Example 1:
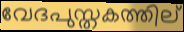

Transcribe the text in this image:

വേദപുസ്തകത്തില്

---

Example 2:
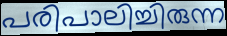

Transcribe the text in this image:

പരിപാലിച്ചിരുന്ന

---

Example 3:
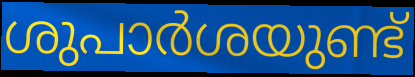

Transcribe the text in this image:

ശുപാർശയുണ്ട്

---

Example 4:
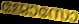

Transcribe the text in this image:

ജോസോ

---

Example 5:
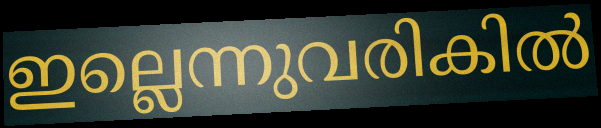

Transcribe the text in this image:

ഇല്ലെന്നുവരികിൽ